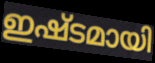
ഇഷ്ടമായി